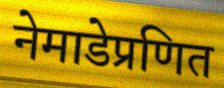
नेमाडेप्रणित